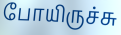
போயிருச்சு